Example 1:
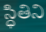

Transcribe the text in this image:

స్ధితిని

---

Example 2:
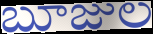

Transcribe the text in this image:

బూజుల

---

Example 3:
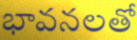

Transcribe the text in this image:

భావనలతో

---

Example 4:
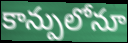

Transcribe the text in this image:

కాన్పులోనూ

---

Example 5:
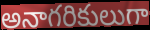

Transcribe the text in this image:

అనాగరికులుగా